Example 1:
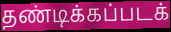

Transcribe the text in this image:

தண்டிக்கப்படக்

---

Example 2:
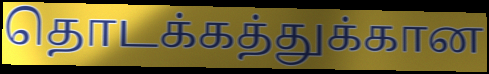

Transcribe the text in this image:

தொடக்கத்துக்கான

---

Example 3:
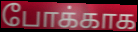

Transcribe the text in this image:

போக்காக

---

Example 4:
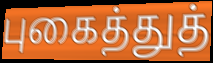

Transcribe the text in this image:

புகைத்துத்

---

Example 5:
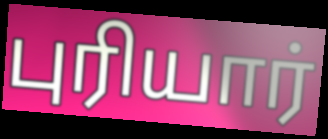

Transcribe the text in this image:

புரியார்